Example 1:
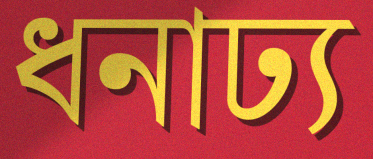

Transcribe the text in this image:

ধনাঢ্য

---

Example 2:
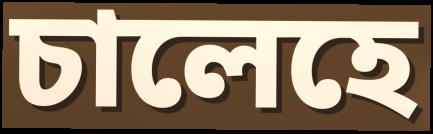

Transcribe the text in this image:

চালেহে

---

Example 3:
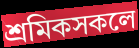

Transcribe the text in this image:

শ্ৰমিকসকলে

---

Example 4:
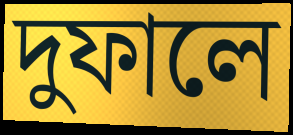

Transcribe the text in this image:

দুফালে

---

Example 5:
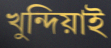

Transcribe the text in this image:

খুন্দিয়াই